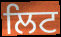
ਲਿਟ